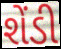
શેંડી